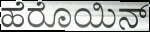
ಹೆರೊಯಿನ್